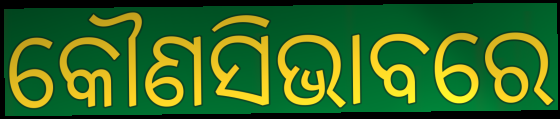
କୌଣସିଭାବରେ